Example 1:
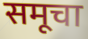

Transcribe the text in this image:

समूचा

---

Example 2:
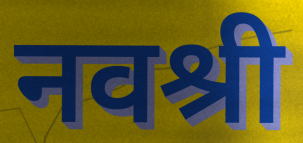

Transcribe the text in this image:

नवश्री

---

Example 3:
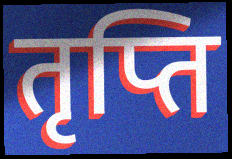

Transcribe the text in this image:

तृप्ति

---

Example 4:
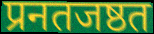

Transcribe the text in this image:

प्रनतजष्ठत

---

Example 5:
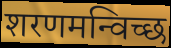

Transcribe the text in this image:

शरणमन्विच्छ